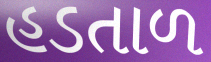
હડતાળ